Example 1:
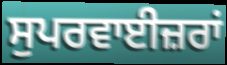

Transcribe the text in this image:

ਸੁਪਰਵਾਈਜ਼ਰਾਂ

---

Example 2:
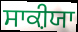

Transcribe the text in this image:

ਸਾਕ਼ੀਯਾ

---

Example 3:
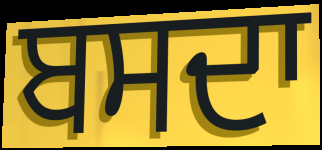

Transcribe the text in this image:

ਬਸਦਾ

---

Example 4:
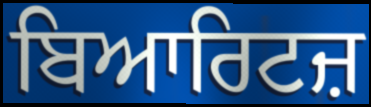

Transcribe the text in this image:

ਬਿਆਰਿਟਜ਼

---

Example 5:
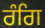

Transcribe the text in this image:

ਰੰਗਿ